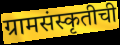
ग्रामसंस्कृतीची